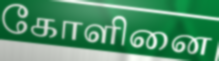
கோளினை